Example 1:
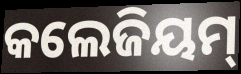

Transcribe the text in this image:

କଲେଜିୟମ୍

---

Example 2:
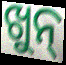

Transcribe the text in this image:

ଖୁନ୍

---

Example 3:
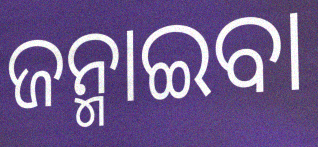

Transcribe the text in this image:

ଜନ୍ମାଇବା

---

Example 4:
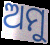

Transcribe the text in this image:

ଅମୁ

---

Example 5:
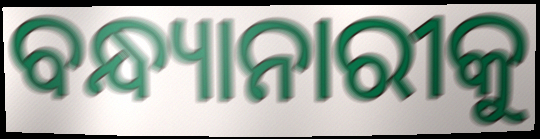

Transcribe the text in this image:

ବନ୍ଧ୍ୟାନାରୀକୁ